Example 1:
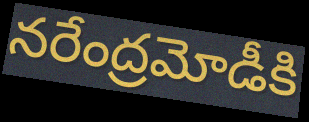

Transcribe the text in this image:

నరేంద్రమోడీకి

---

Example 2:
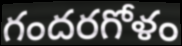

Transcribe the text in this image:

గందరగోళం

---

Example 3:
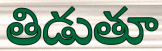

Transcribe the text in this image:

తిడుతూ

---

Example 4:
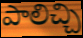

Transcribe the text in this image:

పాలిచ్చి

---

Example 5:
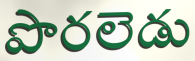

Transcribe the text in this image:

పొరలెడు